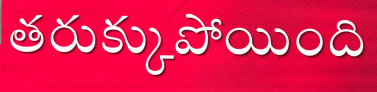
తరుక్కుపోయింది